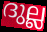
ദുല്ല